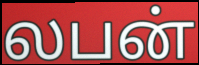
லபன்